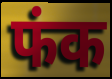
फंक